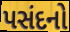
પસંદનો